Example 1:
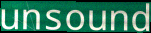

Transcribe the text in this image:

unsound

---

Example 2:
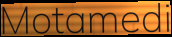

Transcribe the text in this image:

Motamedi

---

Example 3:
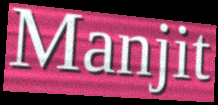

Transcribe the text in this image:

Manjit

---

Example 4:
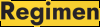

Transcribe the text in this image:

Regimen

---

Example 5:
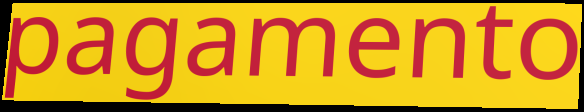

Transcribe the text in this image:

pagamento